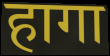
हागा